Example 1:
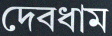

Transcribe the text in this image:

দেবধাম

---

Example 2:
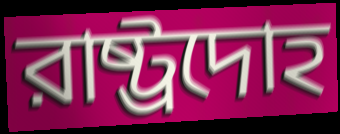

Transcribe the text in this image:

রাষ্ট্রদোহ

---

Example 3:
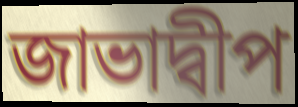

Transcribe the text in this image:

জাভাদ্বীপ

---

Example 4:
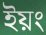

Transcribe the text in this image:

ইয়ং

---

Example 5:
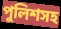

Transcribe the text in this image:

পুলিশসহ